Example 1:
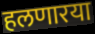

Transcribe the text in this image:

हलणारया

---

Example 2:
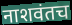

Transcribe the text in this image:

नाशवंतच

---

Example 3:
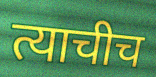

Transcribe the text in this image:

त्याचीच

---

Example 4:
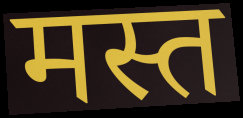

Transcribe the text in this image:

मस्त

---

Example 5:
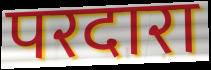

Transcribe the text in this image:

परदारा